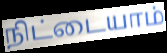
நிட்டையாம்